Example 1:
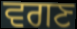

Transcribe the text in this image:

ਵਗਣ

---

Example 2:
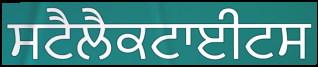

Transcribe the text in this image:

ਸਟੈਲੈਕਟਾਈਟਸ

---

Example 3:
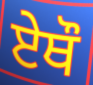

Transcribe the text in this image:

ਏਥੌ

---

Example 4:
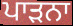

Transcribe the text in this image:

ਪਾੜਨਾ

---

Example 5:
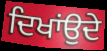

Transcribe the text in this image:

ਦਿਖਾਂਉਦੇ